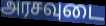
அரசவுடை